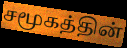
சமூகத்தின்